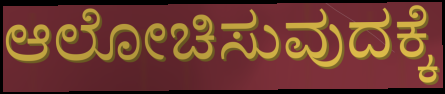
ಆಲೋಚಿಸುವುದಕ್ಕೆ